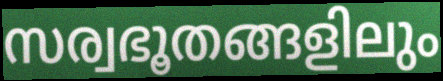
സര്വഭൂതങ്ങളിലും